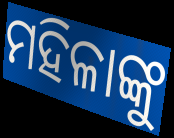
ମହିଳାଙ୍କୁ